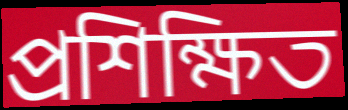
প্ৰশিক্ষিত